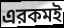
এরকমই